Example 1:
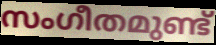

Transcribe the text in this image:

സംഗീതമുണ്ട്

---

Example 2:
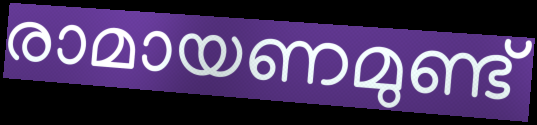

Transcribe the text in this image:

രാമായണമുണ്ട്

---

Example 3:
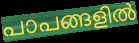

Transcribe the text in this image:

പാപങ്ങളിൽ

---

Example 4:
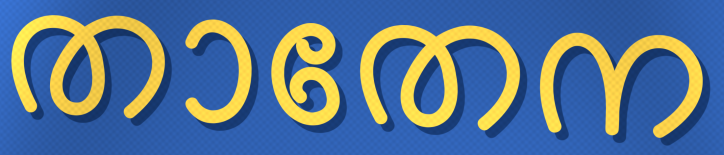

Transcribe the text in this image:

താതേന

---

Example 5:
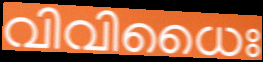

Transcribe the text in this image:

വിവിധൈഃ